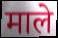
माले